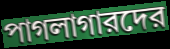
পাগলাগারদের